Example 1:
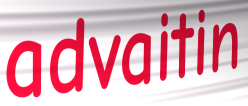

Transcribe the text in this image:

advaitin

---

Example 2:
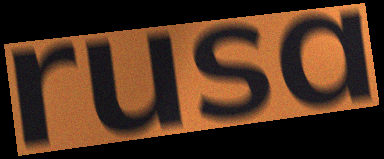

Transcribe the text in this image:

rusa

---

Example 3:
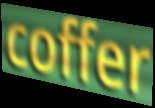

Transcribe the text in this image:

coffer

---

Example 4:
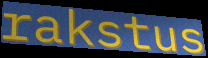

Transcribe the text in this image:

rakstus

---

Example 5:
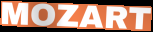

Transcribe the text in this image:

MOZART